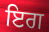
ਇਗ